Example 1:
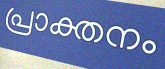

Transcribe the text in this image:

പ്രാക്തനം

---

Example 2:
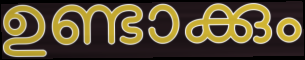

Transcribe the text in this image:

ഉണ്ടാക്കും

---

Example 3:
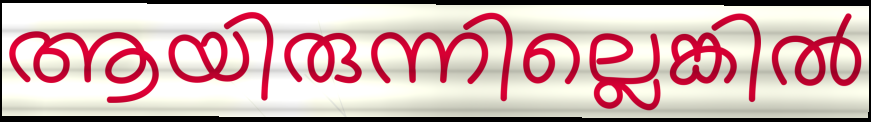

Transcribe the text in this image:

ആയിരുന്നില്ലെങ്കിൽ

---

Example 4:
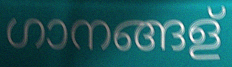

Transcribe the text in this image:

ഗാനങ്ങള്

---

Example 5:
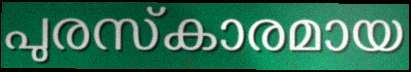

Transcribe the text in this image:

പുരസ്‌കാരമായ